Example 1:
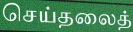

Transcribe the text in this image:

செய்தலைத்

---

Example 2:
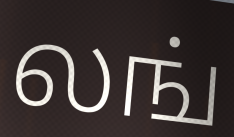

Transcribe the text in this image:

லங்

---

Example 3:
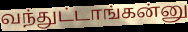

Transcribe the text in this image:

வந்துட்டாங்கன்னு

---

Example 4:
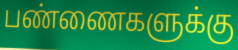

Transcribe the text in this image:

பண்ணைகளுக்கு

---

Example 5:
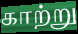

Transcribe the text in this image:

காற்று